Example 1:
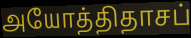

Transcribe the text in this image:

அயோத்திதாசப்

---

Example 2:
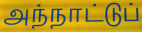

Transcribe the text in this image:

அந்நாட்டுப்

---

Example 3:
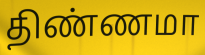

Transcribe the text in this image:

திண்ணமா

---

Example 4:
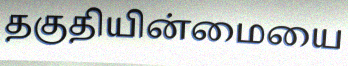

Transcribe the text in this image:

தகுதியின்மையை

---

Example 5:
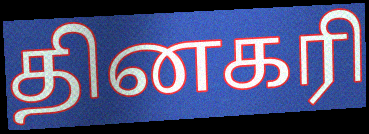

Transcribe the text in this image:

தினகரி